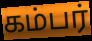
கம்பர்